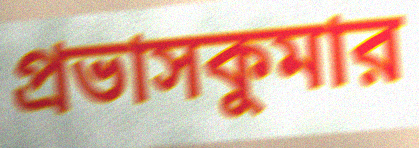
প্রভাসকুমার